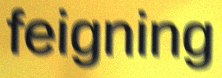
feigning